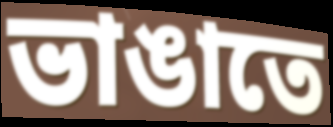
ভাঙাতে